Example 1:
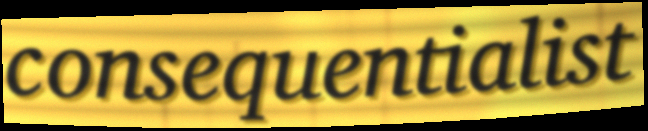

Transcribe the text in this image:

consequentialist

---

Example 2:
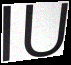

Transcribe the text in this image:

IU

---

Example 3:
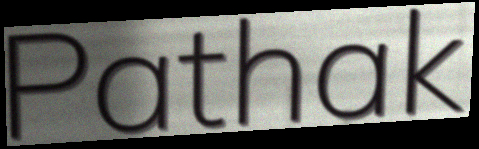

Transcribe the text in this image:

Pathak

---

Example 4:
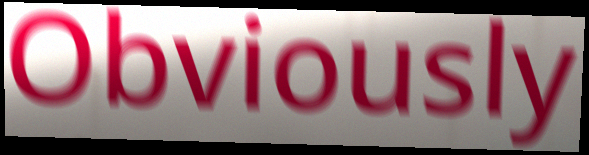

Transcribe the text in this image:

Obviously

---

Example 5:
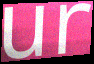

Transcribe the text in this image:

ur